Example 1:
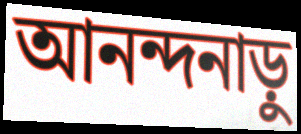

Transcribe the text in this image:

আনন্দনাড়ু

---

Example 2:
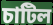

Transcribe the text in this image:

চাটিল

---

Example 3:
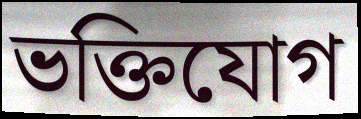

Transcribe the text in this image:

ভক্তিযোগ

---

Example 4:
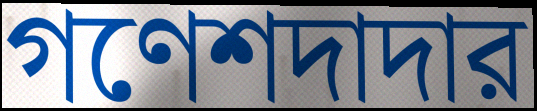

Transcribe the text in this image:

গণেশদাদার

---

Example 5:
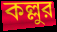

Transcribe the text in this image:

কল্লুর